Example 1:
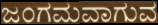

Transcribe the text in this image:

ಜಂಗಮವಾಗುವ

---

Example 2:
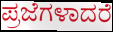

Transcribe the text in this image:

ಪ್ರಜೆಗಳಾದರೆ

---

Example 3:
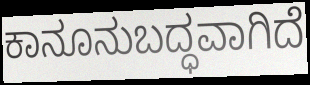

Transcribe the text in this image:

ಕಾನೂನುಬದ್ಧವಾಗಿದೆ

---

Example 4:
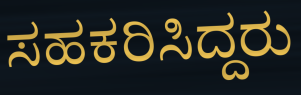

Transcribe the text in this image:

ಸಹಕರಿಸಿದ್ದರು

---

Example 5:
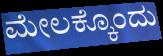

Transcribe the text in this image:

ಮೇಲಕ್ಕೊಂದು